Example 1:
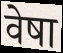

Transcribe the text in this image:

वेषा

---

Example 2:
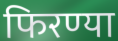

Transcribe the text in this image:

फिरण्या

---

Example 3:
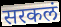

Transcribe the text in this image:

सरकलं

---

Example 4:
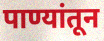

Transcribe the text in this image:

पाण्यांतून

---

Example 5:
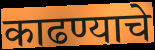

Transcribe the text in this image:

काढण्याचे